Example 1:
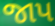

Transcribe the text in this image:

જાપ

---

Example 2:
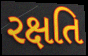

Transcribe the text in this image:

રક્ષતિ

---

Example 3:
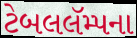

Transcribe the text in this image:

ટેબલલૅમ્પના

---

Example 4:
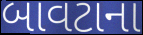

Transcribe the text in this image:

બાવટાના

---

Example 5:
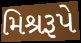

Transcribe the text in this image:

મિશ્રરૂપે